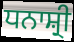
ਧਨਾਸ਼੍ਰੀ